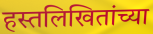
हस्तलिखितांच्या